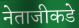
नेताजीकडे